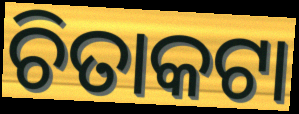
ଚିତାକଟା